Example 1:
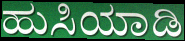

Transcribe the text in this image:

ಹುಸಿಯಾಡಿ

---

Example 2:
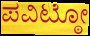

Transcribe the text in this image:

ಪವಿಟ್ಠೋ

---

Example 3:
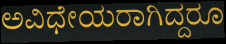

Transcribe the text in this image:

ಅವಿಧೇಯರಾಗಿದ್ದರೂ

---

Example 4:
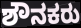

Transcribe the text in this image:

ಶೌನಕರು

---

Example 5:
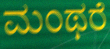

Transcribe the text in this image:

ಮಂಥರೆ